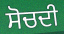
ਸੋਚਦੀ